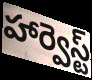
హార్వెస్ట్